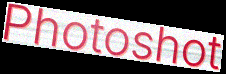
Photoshot